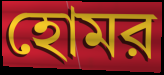
হোমর